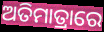
ଅତିମାତ୍ରାରେ